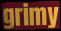
grimy